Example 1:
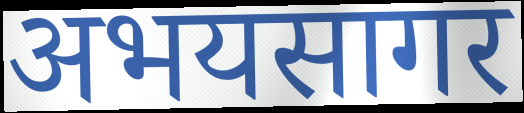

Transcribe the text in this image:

अभयसागर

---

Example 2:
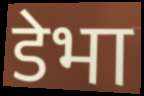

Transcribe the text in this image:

डेभा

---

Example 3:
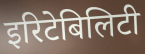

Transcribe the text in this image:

इरिटेबिलिटी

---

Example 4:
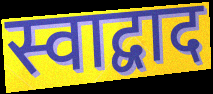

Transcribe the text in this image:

स्वाद्वाद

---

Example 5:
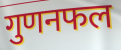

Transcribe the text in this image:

गुणनफल